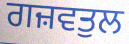
ਗਜ਼ਵਤੁਲ